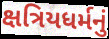
ક્ષત્રિયધર્મનું